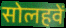
सोलहवें